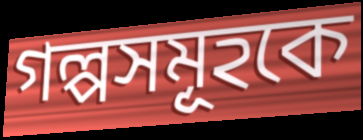
গল্পসমূহকে